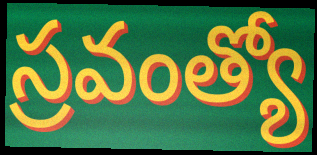
స్రవంత్యో